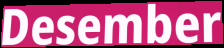
Desember